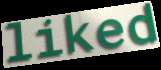
liked